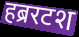
हब्ररटश